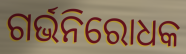
ଗର୍ଭନିରୋଧକ